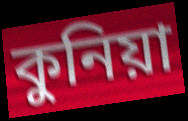
কুনিয়া